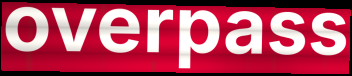
overpass